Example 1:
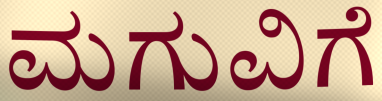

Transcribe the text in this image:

ಮಗುವಿಗೆ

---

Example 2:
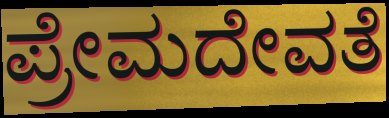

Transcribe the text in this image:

ಪ್ರೇಮದೇವತೆ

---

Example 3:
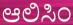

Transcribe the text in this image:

ಆಲಿಸಿಂ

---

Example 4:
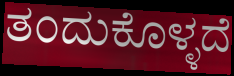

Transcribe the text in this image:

ತಂದುಕೊಳ್ಳದೆ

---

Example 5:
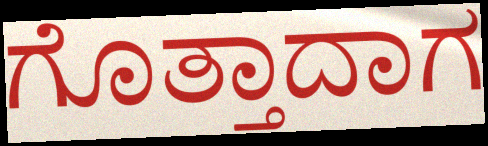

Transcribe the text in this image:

ಗೊತ್ತಾದಾಗ